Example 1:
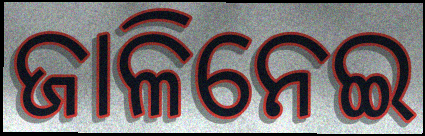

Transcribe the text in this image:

ଜାଳିନେଇ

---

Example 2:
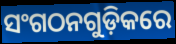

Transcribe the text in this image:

ସଂଗଠନଗୁଡ଼ିକରେ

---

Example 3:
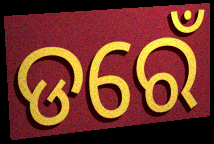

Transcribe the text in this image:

ଡରେଁ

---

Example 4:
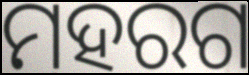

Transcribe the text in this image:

ମହରଗ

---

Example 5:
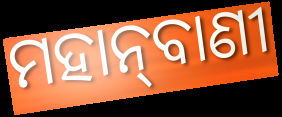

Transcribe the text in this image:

ମହାନ୍‌ବାଣୀ